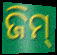
ଜିମ୍